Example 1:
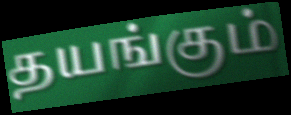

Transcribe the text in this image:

தயங்கும்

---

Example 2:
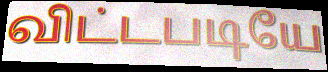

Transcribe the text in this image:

விட்டபடியே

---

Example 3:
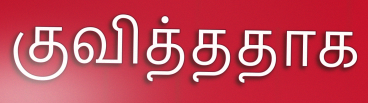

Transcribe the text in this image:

குவித்ததாக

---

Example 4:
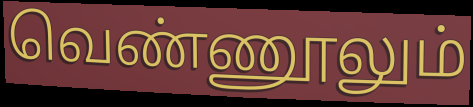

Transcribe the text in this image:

வெண்ணூலும்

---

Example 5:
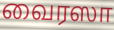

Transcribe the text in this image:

வைரஸா